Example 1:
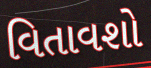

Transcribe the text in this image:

વિતાવશો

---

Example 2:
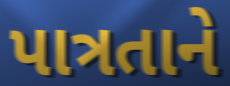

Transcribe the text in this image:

પાત્રતાને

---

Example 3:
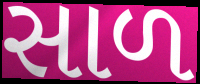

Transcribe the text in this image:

સાળ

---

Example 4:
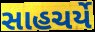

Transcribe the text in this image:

સાહચર્યે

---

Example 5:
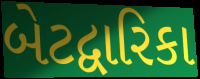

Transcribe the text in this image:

બેટદ્વારિકા